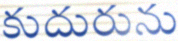
కుదురును